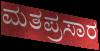
ಮತಪ್ರಸಾರ